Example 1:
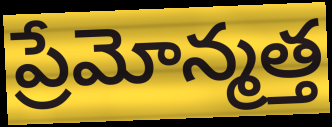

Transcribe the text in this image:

ప్రేమోన్మత్త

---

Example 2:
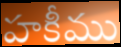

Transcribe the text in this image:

హకీము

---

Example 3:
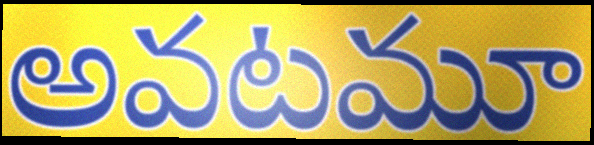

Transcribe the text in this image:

అవటమూ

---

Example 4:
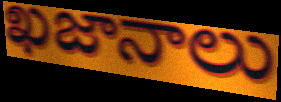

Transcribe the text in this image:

ఖజానాలు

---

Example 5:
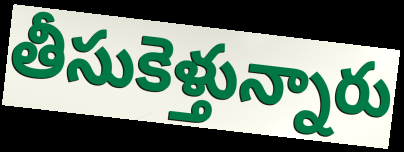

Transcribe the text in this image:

తీసుకెళ్తున్నారు